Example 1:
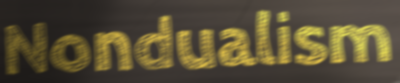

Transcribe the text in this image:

Nondualism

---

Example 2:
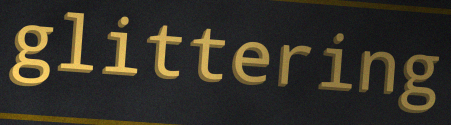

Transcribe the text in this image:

glittering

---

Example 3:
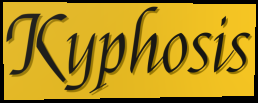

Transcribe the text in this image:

Kyphosis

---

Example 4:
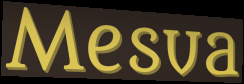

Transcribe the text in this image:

Mesua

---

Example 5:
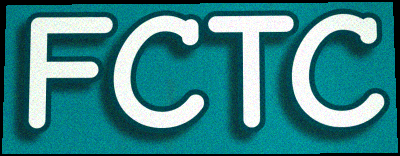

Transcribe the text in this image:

FCTC